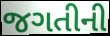
જગતીની